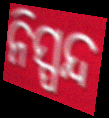
ନିସ୍ପନ୍ଦ